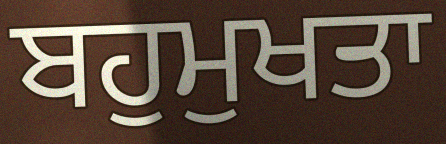
ਬਹੁਮੁਖਤਾ